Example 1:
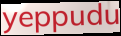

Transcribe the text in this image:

yeppudu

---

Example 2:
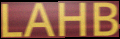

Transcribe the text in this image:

LAHB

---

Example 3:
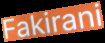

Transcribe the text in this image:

Fakirani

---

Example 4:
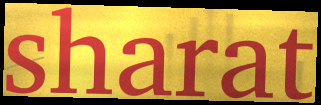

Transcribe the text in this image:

sharat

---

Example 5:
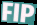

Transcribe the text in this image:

FIP